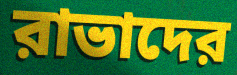
রাভাদের